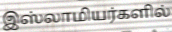
இஸ்லாமியர்களில்